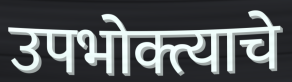
उपभोक्त्याचे